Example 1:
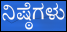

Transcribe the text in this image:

ನಿಷ್ಠೆಗಳು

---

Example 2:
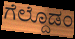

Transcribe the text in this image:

ಗೆಲ್ದೊಡಂ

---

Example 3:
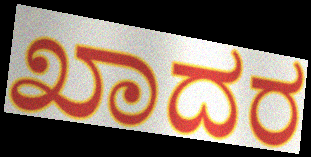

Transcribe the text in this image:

ಖಾದರ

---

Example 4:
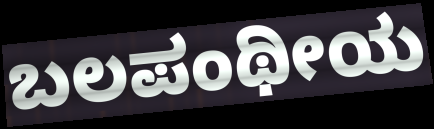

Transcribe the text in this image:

ಬಲಪಂಥೀಯ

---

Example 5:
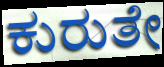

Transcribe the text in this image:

ಕುರುತೇ